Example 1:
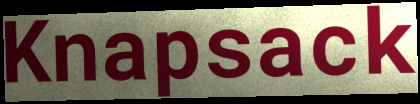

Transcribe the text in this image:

Knapsack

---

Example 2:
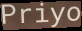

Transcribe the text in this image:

Priyo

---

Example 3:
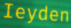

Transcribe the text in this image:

Ieyden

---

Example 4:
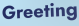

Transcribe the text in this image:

Greeting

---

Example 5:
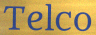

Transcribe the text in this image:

Telco